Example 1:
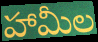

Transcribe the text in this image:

హామీల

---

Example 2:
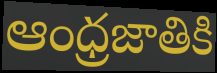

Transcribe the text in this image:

ఆంధ్రజాతికి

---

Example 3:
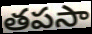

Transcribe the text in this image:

తపసా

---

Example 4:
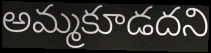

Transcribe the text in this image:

అమ్మకూడదని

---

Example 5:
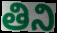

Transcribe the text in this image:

తిని